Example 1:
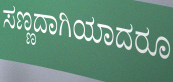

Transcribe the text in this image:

ಸಣ್ಣದಾಗಿಯಾದರೂ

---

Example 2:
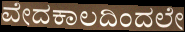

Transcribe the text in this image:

ವೇದಕಾಲದಿಂದಲೇ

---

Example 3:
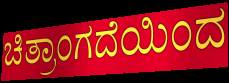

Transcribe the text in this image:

ಚಿತ್ರಾಂಗದೆಯಿಂದ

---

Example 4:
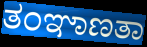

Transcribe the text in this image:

ತಂಞಾಣತಾ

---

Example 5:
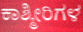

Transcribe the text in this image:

ಕಾಶ್ಮೀರಿಗಳ